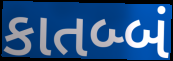
કાતબ્બં